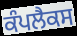
ਕੰਪਲੈਕਸ